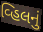
વ્હિલનું